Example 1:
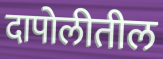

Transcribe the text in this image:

दापोलीतील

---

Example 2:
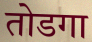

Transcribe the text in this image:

तोडगा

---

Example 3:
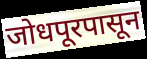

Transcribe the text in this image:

जोधपूरपासून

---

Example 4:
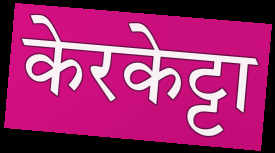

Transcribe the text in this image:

केरकेट्टा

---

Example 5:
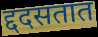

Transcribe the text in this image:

द्ददसतात